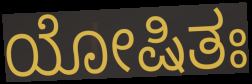
ಯೋಷಿತಃ